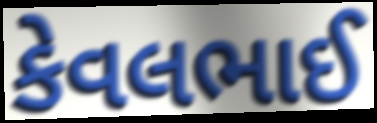
કેવલભાઈ